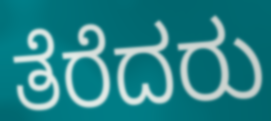
ತೆರೆದರು